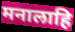
मनालाहि